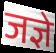
जज्ञे